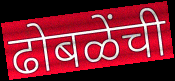
ढोबळेंची